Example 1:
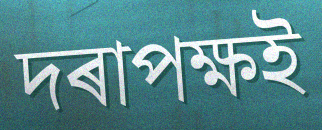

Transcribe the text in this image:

দৰাপক্ষই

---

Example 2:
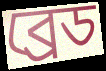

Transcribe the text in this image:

ব্ৰেড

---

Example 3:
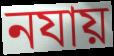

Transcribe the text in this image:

নযায়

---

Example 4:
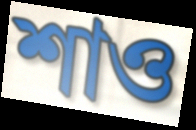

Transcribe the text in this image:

শাও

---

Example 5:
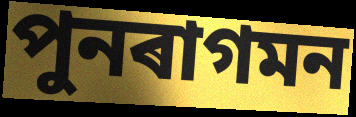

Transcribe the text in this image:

পুনৰাগমন